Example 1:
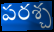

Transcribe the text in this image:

పరశ్చ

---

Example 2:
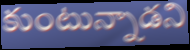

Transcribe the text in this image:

కుంటున్నాడని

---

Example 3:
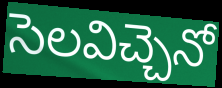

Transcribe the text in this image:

సెలవిచ్చెనో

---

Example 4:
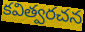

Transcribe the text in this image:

కవిత్వరచన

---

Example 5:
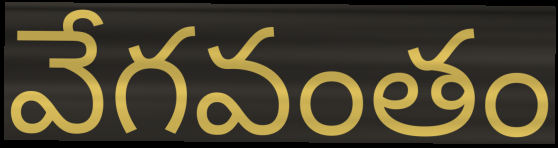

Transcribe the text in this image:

వేగవంతం